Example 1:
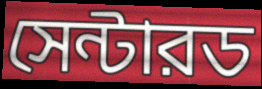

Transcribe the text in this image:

সেন্টারড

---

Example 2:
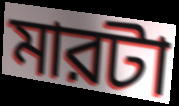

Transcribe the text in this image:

মারটা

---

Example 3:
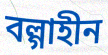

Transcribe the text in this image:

বল্গাহীন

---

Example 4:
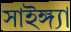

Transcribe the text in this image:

সাইঙ্গ্যা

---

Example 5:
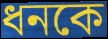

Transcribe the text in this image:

ধনকে